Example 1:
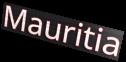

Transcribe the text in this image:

Mauritia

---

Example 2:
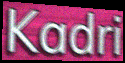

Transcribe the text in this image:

Kadri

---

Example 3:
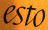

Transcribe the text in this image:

esto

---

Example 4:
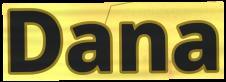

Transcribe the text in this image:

Dana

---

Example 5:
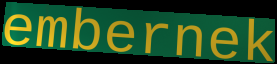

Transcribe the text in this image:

embernek